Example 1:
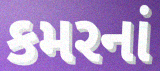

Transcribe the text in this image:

કમરનાં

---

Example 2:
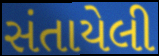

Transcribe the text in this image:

સંતાયેલી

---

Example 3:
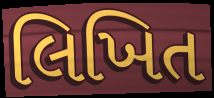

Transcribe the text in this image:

લિખિત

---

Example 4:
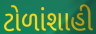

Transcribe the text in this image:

ટોળાંશાહી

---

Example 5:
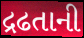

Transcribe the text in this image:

દ્રઢતાની